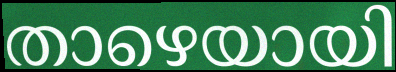
താഴെയായി